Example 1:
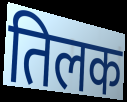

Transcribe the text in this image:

तिलक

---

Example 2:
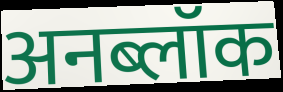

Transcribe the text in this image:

अनब्लॉक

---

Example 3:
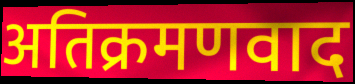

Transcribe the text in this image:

अतिक्रमणवाद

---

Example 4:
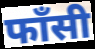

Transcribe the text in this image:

फाँसी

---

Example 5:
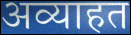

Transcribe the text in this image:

अव्याहत